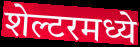
शेल्टरमध्ये